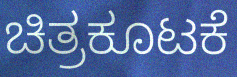
ಚಿತ್ರಕೂಟಕೆ